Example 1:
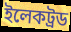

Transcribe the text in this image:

ইলেকট্রড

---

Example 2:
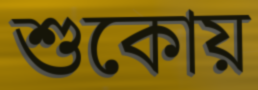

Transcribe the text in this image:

শুকোয়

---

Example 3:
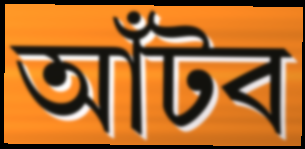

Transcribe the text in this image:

আঁটব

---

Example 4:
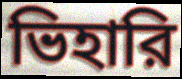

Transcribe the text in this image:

ভিহারি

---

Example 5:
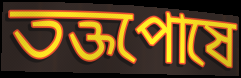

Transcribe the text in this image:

তক্তপোষে